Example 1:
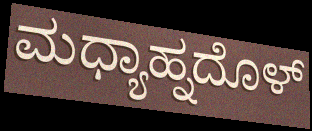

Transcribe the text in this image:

ಮಧ್ಯಾಹ್ನದೊಳ್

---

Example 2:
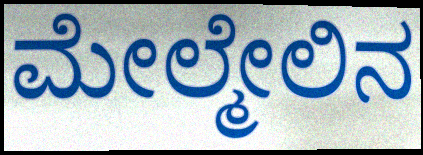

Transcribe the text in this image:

ಮೇಲ್ಮೇಲಿನ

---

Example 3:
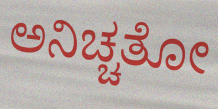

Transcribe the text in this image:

ಅನಿಚ್ಚತೋ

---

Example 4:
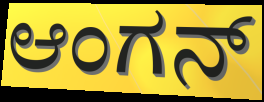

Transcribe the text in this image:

ಆಂಗನ್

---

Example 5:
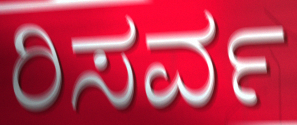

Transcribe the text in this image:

ರಿಸರ್ವ